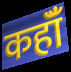
कहॉँ